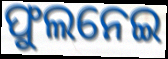
ଫୁଲନେଇ